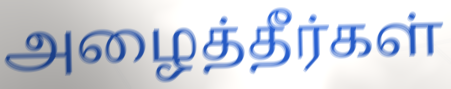
அழைத்தீர்கள்